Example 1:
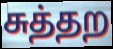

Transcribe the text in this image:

சுத்தற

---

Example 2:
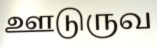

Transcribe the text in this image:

ஊடுருவ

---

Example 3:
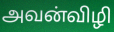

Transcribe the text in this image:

அவன்விழி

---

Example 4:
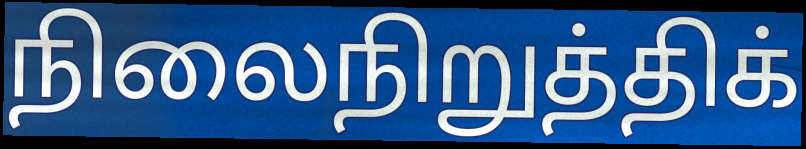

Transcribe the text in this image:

நிலைநிறுத்திக்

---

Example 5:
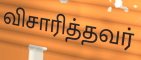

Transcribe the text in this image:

விசாரித்தவர்